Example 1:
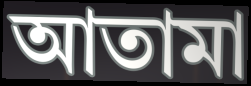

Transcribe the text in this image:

আতামা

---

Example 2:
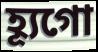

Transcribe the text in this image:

হ্যূগো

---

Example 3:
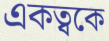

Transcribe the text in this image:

একত্বকে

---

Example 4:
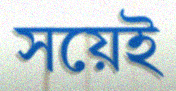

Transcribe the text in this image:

সয়েই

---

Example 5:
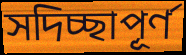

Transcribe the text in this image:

সদিচ্ছাপূর্ণ